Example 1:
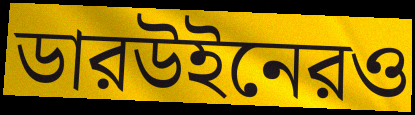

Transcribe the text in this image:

ডারউইনেরও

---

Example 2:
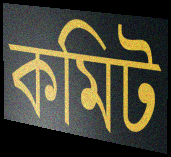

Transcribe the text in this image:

কমিট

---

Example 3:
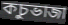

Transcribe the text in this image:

কচুভাজা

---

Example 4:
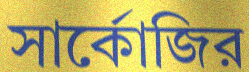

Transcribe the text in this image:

সার্কোজির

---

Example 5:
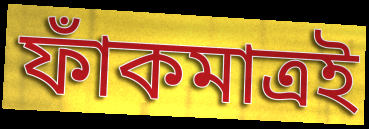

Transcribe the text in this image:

ফাঁকমাত্রই